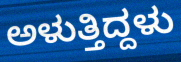
ಅಳುತ್ತಿದ್ದಳು